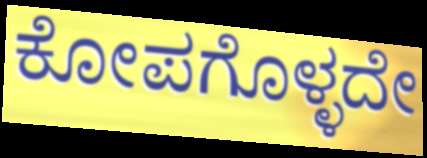
ಕೋಪಗೊಳ್ಳದೇ